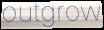
outgrow